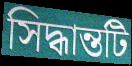
সিদ্ধান্তটি